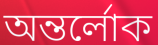
অন্তর্লোক